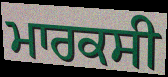
ਮਾਰਕਸੀ